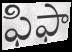
ఫిఫా